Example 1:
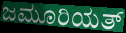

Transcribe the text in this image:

ಜಮೂರಿಯತ್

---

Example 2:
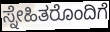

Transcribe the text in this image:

ಸ್ನೇಹಿತರೊಂದಿಗೆ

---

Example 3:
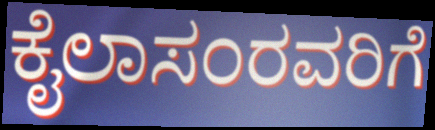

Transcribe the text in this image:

ಕೈಲಾಸಂರವರಿಗೆ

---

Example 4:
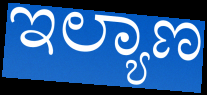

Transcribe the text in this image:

ಇಲ್ಯಾಣ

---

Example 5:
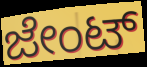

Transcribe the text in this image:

ಜೇಂಟ್